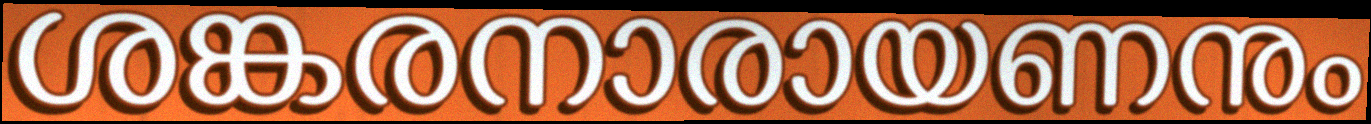
ശങ്കരനാരായണനും